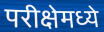
परीक्षेमध्ये